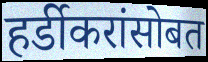
हर्डीकरांसोबत